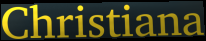
Christiana